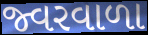
જ્વરવાળા